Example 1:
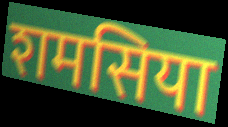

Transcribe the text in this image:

शमसिया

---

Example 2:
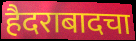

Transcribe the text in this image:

हैदराबादचा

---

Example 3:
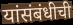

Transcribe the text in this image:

यांसंबंधीची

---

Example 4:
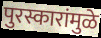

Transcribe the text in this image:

पुरस्कारांमुळे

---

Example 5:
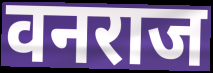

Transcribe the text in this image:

वनराज